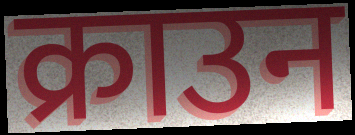
क्राउन